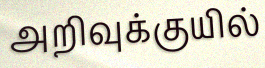
அறிவுக்குயில்